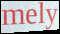
mely